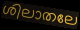
ശിലാതലേ